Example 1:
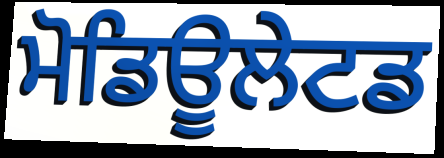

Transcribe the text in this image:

ਮੋਡਿਊਲੇਟਡ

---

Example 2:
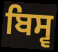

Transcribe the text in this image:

ਬਿਸ੍ਵ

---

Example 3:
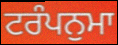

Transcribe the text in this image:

ਟਰੰਪਨੁਮਾ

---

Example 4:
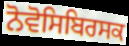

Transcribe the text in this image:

ਨੋਵੋਸਿਬਿਰਸਕ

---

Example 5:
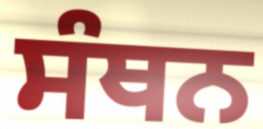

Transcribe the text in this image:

ਸੰਥਨ